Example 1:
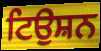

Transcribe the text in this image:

ਟਿਉਸ਼ਨ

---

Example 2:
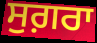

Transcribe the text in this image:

ਸੁਗ਼ਰਾ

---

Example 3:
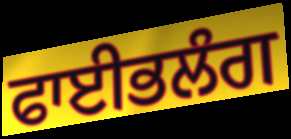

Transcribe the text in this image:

ਫਾਈਭਲੰਗ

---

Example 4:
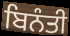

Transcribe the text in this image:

ਬਿਨੰਤੀ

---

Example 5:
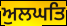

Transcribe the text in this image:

ਅੁਲਘਤਿ